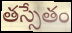
తస్సేతం